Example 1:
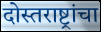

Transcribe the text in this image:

दोस्तराष्ट्रांचा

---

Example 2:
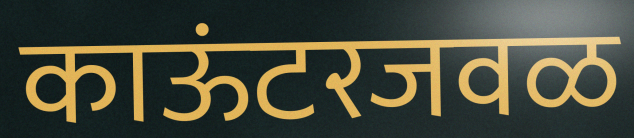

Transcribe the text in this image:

काऊंटरजवळ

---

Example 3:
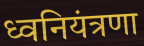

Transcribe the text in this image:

ध्वनियंत्रणा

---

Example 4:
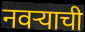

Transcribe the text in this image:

नवऱ्याची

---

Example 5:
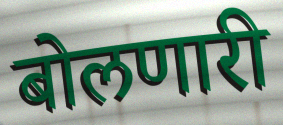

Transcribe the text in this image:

बोलणारी